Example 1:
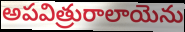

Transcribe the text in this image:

అపవిత్రురాలాయెను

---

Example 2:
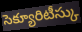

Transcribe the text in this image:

సెక్యూరిటీస్కు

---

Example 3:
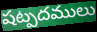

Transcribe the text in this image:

షట్పదములు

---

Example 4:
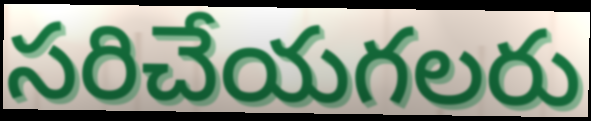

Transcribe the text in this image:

సరిచేయగలరు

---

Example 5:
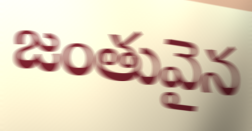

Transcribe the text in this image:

జంతువైన